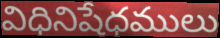
విధినిషేధములు